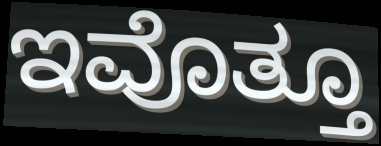
ಇವೊತ್ತೂ